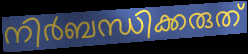
നിർബന്ധിക്കരുത്